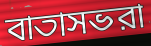
বাতাসভরা